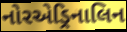
નોરએડ્રિનાલિન